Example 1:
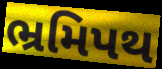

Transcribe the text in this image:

ભ્રમિપથ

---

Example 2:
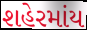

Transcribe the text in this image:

શહેરમાંય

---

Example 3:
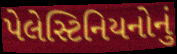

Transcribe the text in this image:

પેલેસ્ટિનિયનોનું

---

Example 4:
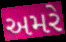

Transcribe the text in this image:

અમરે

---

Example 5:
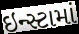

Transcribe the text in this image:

ઇન્સ્ટામાં